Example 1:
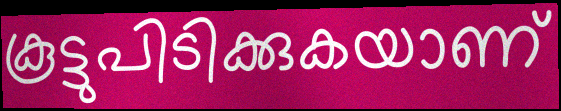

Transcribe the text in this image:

കൂട്ടുപിടിക്കുകയാണ്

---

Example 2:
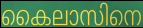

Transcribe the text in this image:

കൈലാസിനെ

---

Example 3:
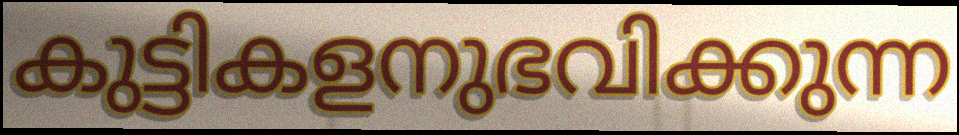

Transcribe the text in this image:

കുട്ടികളനുഭവിക്കുന്ന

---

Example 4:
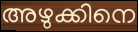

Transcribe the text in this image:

അഴുക്കിനെ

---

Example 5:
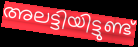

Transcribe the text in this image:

അലട്ടിയിട്ടുണ്ട്